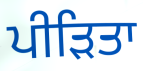
ਪੀੜਿਤਾ